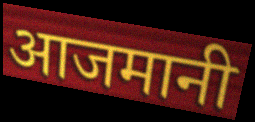
आजमानी